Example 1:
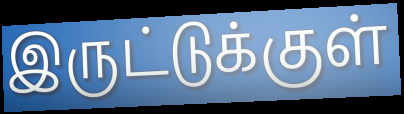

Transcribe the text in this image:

இருட்டுக்குள்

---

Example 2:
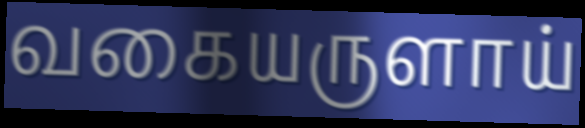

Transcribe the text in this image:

வகையருளாய்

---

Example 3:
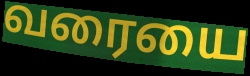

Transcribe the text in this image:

வரையை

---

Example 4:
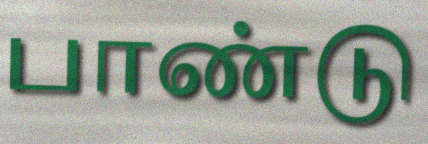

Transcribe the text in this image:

பாண்டு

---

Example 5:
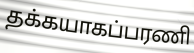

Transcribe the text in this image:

தக்கயாகப்பரணி